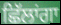
ਛਿੱਲਾਂਗਾ